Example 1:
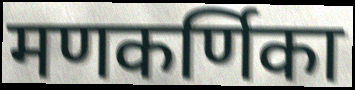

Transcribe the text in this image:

मणकर्णिका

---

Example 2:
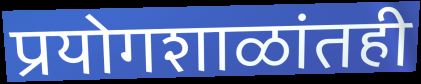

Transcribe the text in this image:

प्रयोगशाळांतही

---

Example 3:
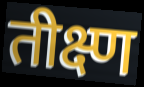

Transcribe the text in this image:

तीक्ष्ण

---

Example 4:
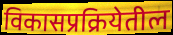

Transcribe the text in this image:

विकासप्रक्रियेतील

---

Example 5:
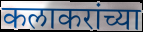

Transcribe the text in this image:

कलाकरांच्या